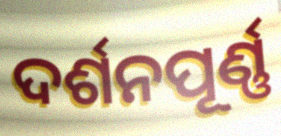
ଦର୍ଶନପୂର୍ଣ୍ଣ